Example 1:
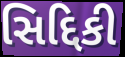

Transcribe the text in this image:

સિદ્દિકી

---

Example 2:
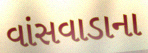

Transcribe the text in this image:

વાંસવાડાના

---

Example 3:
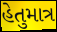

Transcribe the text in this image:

હેતુમાત્ર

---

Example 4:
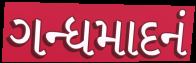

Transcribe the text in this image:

ગન્ધમાદનં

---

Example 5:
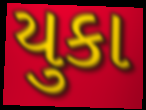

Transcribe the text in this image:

યુકા